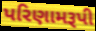
પરિણામરૂપી